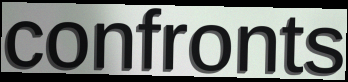
confronts